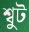
শ্বুট